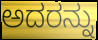
ಅದರನ್ನು